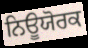
ਨਿਊਯੋਰਕ